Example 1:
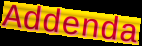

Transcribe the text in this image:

Addenda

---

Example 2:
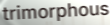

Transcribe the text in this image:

trimorphous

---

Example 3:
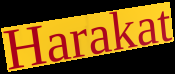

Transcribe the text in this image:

Harakat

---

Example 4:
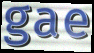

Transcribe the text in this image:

gae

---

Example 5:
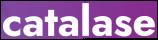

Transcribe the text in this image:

catalase